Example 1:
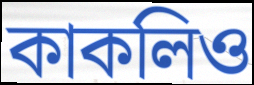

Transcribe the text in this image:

কাকলিও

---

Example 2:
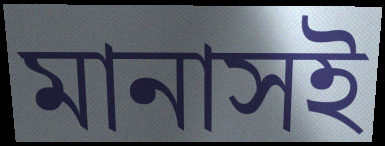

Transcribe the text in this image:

মানাসই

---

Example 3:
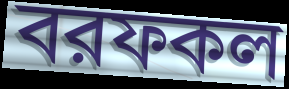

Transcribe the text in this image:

বরফকল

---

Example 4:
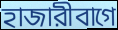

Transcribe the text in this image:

হাজারীবাগে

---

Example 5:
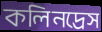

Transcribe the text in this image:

কলিনদ্রেস